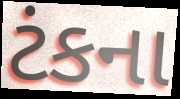
ટંકના